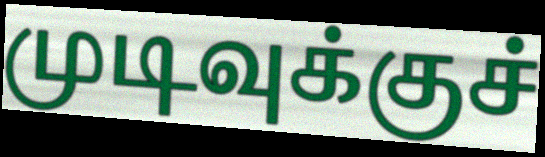
முடிவுக்குச்